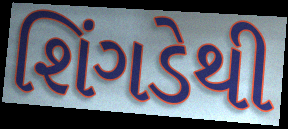
શિંગડેથી